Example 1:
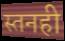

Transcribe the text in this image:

स्तनही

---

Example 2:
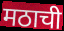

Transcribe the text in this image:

मठाची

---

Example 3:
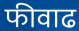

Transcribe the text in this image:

फीवाढ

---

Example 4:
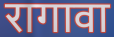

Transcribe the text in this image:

रागावा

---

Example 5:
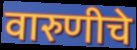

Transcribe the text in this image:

वारुणीचे